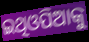
ଇଥିଓପିଆକୁ